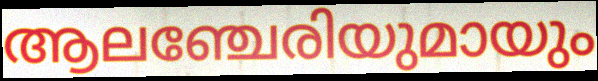
ആലഞ്ചേരിയുമായും